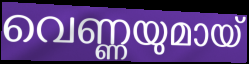
വെണ്ണയുമായ്